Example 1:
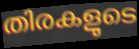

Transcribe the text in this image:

തിരകളുടെ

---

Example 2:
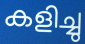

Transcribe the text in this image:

കളിച്ചു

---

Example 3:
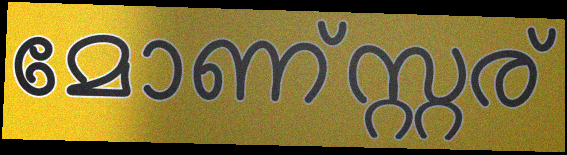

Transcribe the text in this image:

മോണ്സ്റ്റര്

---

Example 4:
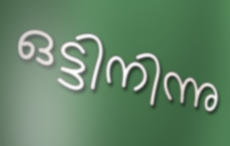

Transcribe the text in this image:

ഒട്ടിനിന്നു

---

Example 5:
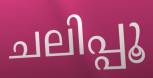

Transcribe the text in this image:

ചലിപ്പൂ